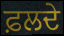
ਫ਼ਲਦੇ